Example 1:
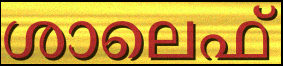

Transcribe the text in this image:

ശാലെഫ്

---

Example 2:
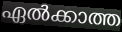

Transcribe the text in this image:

ഏൽക്കാത്ത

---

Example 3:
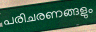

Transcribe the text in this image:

പരിചരണങ്ങളും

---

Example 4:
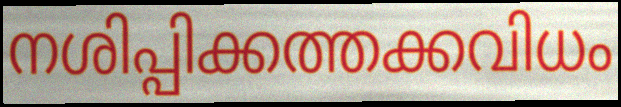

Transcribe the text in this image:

നശിപ്പിക്കത്തക്കവിധം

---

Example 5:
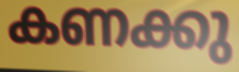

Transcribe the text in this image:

കണക്കു